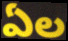
ఏల